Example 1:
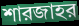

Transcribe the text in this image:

শারজাহর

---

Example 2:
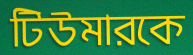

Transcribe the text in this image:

টিউমারকে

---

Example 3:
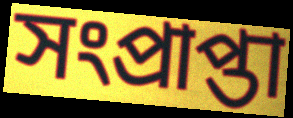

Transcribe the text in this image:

সংপ্রাপ্তা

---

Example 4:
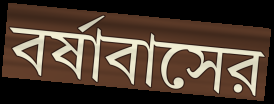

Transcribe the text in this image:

বর্ষাবাসের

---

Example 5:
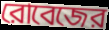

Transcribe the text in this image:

রোবেজের